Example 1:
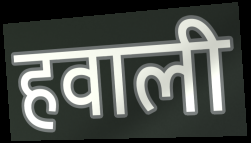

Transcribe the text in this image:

हवाली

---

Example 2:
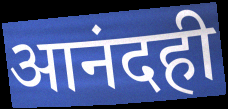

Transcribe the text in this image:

आनंदही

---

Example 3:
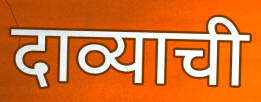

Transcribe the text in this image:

दाव्याची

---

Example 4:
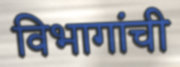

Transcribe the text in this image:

विभागांची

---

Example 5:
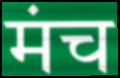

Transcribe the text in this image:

मंच